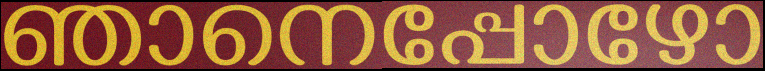
ഞാനെപ്പോഴോ